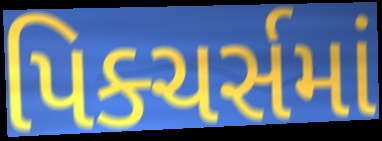
પિક્ચર્સમાં